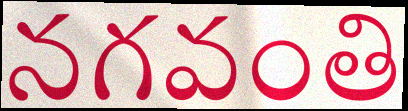
నగవంతి